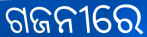
ଗଜନୀରେ